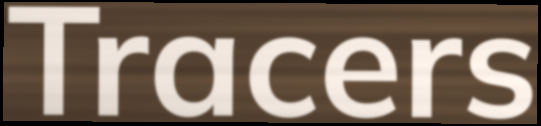
Tracers